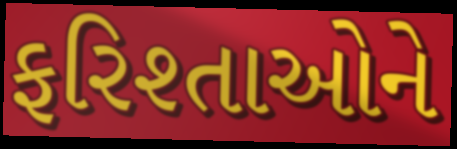
ફરિશ્તાઓને